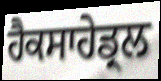
ਹੈਕਸਾਹੇਡ੍ਰਲ